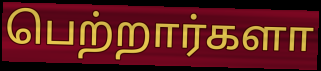
பெற்றார்களா